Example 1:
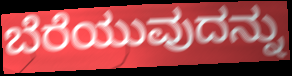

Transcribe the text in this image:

ಬೆರೆಯುವುದನ್ನು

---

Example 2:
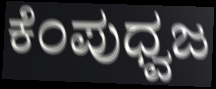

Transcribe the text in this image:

ಕೆಂಪುಧ್ವಜ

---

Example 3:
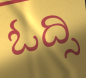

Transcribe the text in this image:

ಓದ್ಸಿ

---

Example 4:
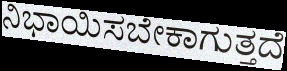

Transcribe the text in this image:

ನಿಭಾಯಿಸಬೇಕಾಗುತ್ತದೆ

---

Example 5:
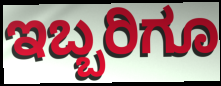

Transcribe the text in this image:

ಇಬ್ಬರಿಗೂ